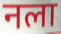
नला